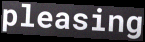
pleasing